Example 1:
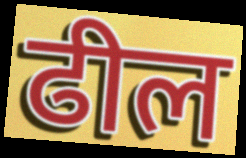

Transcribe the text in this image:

ढील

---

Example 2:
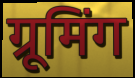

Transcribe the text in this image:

ग्रूमिंग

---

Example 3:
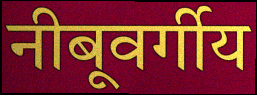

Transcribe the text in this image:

नीबूवर्गीय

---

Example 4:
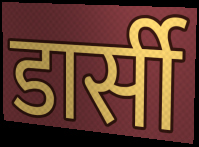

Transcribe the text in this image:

डार्सी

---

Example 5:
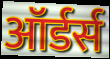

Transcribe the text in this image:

ऑर्डर्स